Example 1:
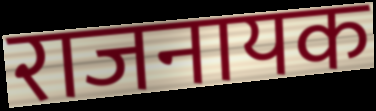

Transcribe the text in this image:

राजनायक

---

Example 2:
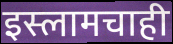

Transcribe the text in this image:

इस्लामचाही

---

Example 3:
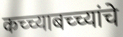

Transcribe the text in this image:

कच्च्याबच्च्यांचे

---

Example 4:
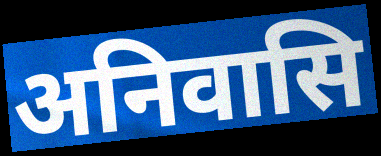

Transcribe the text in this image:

अनिवासि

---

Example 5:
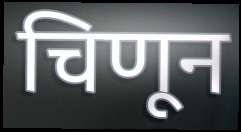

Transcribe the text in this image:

चिणून